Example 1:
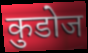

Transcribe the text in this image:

कुडोज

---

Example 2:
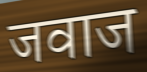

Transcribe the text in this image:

जवाज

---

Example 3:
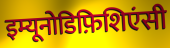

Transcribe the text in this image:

इम्यूनोडिफ़िशिएंसी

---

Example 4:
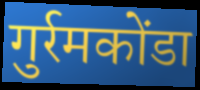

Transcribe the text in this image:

गुर्रमकोंडा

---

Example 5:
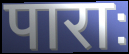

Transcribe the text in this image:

पाराः